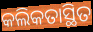
କଲିକତାସ୍ଥିତ